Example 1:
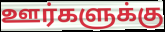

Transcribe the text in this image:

ஊர்களுக்கு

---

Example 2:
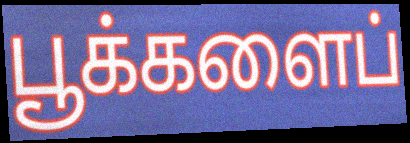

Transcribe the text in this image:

பூக்களைப்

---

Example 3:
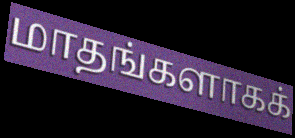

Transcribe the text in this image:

மாதங்களாகக்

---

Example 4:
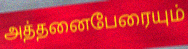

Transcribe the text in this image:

அத்தனைபேரையும்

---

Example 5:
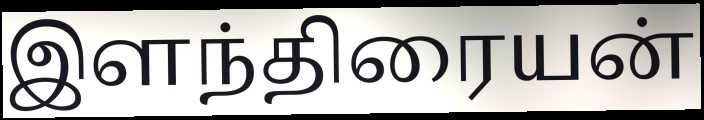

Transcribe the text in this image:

இளந்திரையன்